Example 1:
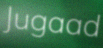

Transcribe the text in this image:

Jugaad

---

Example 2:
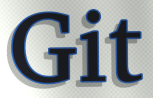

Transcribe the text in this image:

Git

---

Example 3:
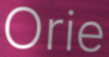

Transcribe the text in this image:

Orie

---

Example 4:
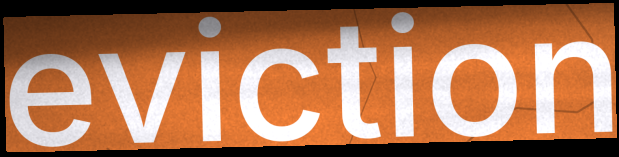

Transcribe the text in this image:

eviction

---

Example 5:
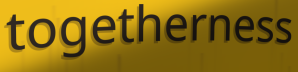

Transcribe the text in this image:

togetherness